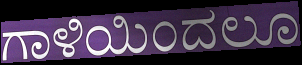
ಗಾಳಿಯಿಂದಲೂ